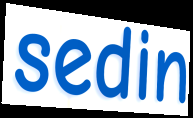
sedin